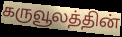
கருவூலத்தின்